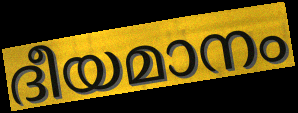
ദീയമാനം